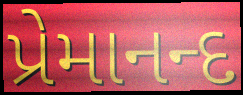
પ્રેમાનન્દ